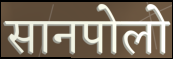
सानपोलो